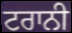
ਟਰਾਨੀ